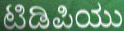
ಟಿಡಿಪಿಯು